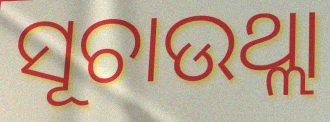
ସୂଚାଉଥ୍ଲା